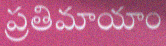
ప్రతిమాయాం